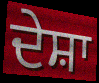
ਦੇਸ਼ਾ